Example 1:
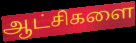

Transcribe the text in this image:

ஆட்சிகளை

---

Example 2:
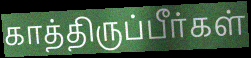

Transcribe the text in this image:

காத்திருப்பீர்கள்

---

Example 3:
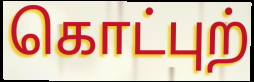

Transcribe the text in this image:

கொட்புற்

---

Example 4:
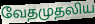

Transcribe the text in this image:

வேதமுதலிய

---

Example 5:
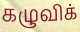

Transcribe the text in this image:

கழுவிக்